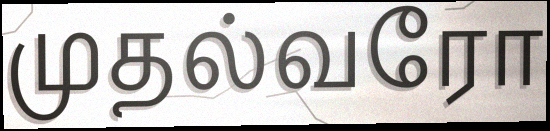
முதல்வரோ